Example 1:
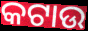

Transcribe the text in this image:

କଟାଉ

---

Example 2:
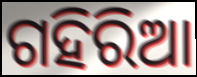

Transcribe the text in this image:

ଗହିରିଆ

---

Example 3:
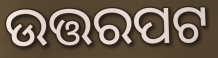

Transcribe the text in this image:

ଉତ୍ତରପଟ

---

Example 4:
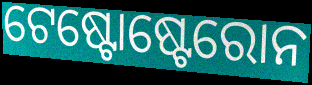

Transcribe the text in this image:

ଟେଷ୍ଟୋଷ୍ଟେରୋନ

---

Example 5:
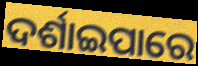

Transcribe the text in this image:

ଦର୍ଶାଇପାରେ